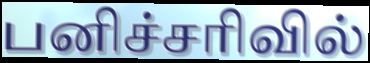
பனிச்சரிவில்